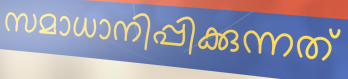
സമാധാനിപ്പിക്കുന്നത്